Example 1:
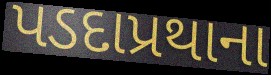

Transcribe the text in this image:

પડદાપ્રથાના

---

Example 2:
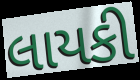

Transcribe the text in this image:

લાયકી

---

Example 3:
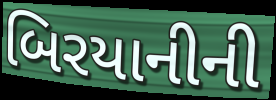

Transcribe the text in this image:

બિરયાનીની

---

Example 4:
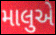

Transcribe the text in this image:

માલુએ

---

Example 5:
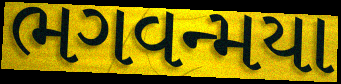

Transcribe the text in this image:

ભગવન્મયા